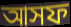
আসফ